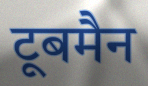
टूबमैन